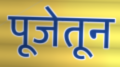
पूजेतून